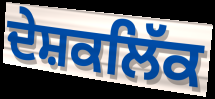
ਦੇਸ਼ਕਲਿੱਕ